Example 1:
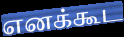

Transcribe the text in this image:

எனக்கூட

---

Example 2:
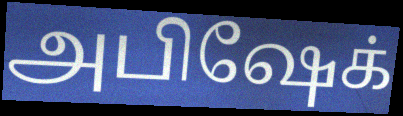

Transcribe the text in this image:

அபிஷேக்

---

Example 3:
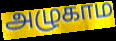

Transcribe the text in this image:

அழுகாம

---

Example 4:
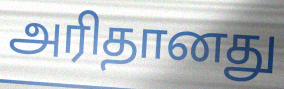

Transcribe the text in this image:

அரிதானது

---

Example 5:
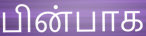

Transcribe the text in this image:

பின்பாக